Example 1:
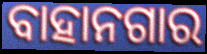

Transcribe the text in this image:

ବାହାନଗାର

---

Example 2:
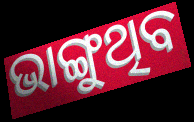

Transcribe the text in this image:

ଭାଙ୍ଗୁଥିବ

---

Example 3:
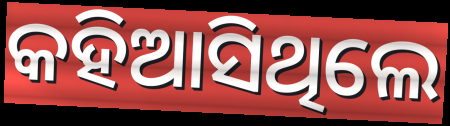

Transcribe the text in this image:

କହିଆସିଥିଲେ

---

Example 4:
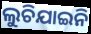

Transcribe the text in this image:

ଲୁଚିଯାଇନି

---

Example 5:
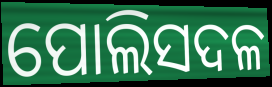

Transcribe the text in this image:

ପୋଲିସଦଳ